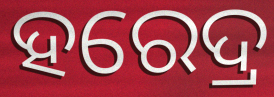
ହରେଦ୍ର